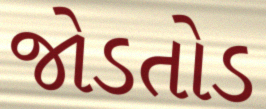
જોડતોડ